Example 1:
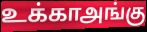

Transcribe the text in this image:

உக்காஅங்கு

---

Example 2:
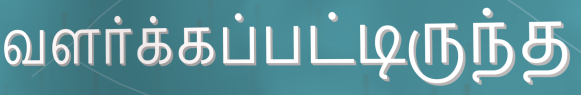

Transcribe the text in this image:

வளர்க்கப்பட்டிருந்த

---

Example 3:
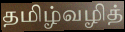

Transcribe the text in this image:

தமிழ்வழித்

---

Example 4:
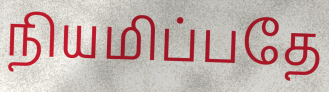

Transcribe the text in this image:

நியமிப்பதே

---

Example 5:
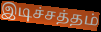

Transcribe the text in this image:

இடிச்சத்தம்